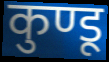
कुण्डू